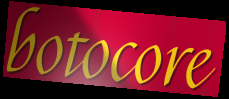
botocore